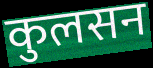
कुलसन